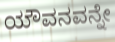
ಯೌವನವನ್ನೇ